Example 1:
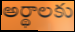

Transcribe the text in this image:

అర్థాలకు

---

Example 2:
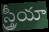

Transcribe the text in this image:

స్త్రీయా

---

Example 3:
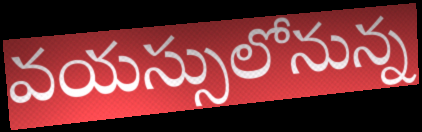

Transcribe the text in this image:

వయస్సులోనున్న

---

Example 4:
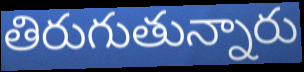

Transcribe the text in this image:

తిరుగుతున్నారు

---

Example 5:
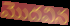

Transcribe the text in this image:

మొదవిన